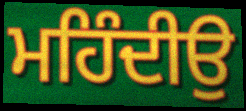
ਮਹਿੰਦੀਉ